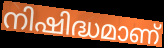
നിഷിദ്ധമാണ്